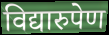
विद्यारुपेण